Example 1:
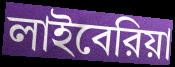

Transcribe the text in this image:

লাইবেরিয়া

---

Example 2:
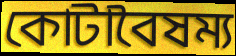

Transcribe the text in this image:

কোটাবৈষম্য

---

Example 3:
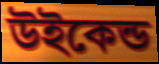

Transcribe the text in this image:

উইকেন্ড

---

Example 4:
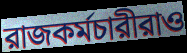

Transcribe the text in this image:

রাজকর্মচারীরাও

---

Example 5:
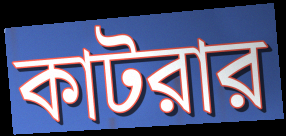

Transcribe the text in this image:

কাটরার